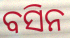
ବସିନ